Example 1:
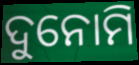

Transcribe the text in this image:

ଦୁନୋମି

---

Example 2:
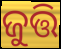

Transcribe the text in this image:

ଜୁତ୍ତି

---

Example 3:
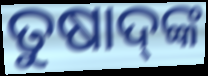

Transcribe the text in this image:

ତୁଷାଦ୍‌ଙ୍କ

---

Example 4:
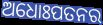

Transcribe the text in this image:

ଅଧୋଃପତନର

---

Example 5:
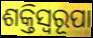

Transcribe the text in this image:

ଶକ୍ତିସ୍ବରୂପା